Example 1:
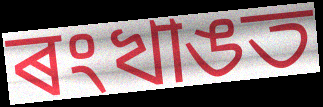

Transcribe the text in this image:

ৰংখাঙত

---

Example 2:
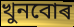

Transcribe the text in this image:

খুনবোৰ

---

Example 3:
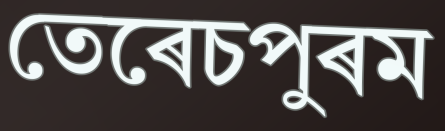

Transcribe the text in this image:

তেৰেচপুৰম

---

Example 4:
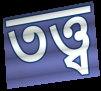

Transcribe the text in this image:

তত্ত্ব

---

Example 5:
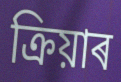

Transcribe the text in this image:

ক্ৰিয়াৰ